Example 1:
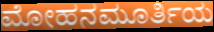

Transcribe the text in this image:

ಮೋಹನಮೂರ್ತಿಯ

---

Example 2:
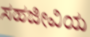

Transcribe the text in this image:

ಸಹಜೀವಿಯ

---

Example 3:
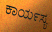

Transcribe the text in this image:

ಕಾರ್ಯಸ್ಯ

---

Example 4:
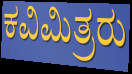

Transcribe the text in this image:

ಕವಿಮಿತ್ರರು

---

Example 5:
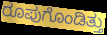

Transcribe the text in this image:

ರೂಪುಗೊಂಡಿತ್ತು